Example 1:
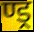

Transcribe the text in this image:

ण्ड्र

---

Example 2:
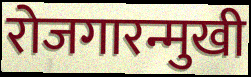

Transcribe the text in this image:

रोजगारन्मुखी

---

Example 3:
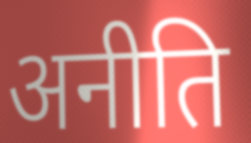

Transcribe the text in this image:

अनीति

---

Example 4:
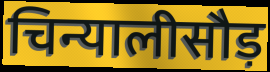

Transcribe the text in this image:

चिन्यालीसौड़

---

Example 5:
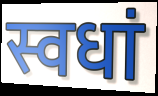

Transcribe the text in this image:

स्वधां